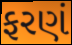
ફરણં